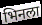
भिनला